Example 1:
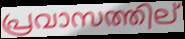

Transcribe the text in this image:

പ്രവാസത്തില്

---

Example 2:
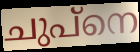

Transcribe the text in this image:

ചുപ്നെ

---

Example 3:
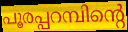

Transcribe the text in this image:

പൂരപ്പറമ്പിന്റെ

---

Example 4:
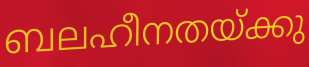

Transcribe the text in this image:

ബലഹീനതയ്ക്കു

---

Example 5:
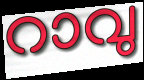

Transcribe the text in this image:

റാവു